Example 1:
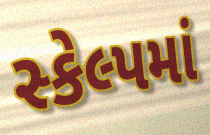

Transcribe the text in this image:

સ્કેલ્પમાં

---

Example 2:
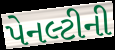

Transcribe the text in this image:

પેનલ્ટીની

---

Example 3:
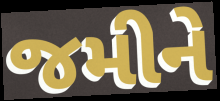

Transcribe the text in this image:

જમીને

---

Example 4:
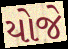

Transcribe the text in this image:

યોજે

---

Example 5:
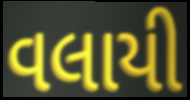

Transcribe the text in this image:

વલાયી